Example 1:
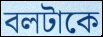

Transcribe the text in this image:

বলটাকে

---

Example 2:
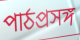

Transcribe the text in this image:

পাঠপ্রসঙ্গ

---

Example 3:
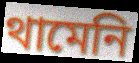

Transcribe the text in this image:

থামেনি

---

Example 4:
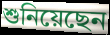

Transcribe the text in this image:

শুনিয়েছেন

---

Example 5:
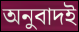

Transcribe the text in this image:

অনুবাদই